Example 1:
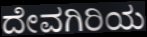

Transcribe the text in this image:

ದೇವಗಿರಿಯ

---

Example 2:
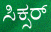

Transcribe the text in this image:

ಸಿಕ್ಸರ್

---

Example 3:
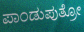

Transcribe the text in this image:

ಪಾಂಡುಪುತ್ರೋ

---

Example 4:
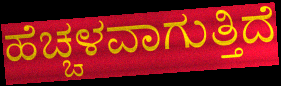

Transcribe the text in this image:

ಹೆಚ್ಚಳವಾಗುತ್ತಿದೆ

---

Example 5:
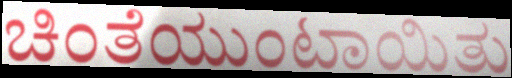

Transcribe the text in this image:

ಚಿಂತೆಯುಂಟಾಯಿತು